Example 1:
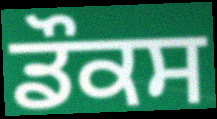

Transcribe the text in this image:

ਡੌਕਸ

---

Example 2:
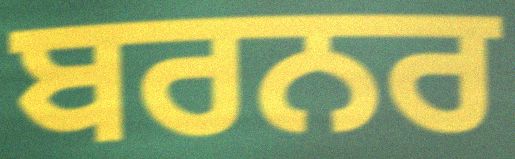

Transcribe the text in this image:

ਬਰਨਰ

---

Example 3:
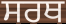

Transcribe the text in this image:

ਸਰਥ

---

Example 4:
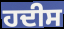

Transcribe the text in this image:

ਹਦੀਸ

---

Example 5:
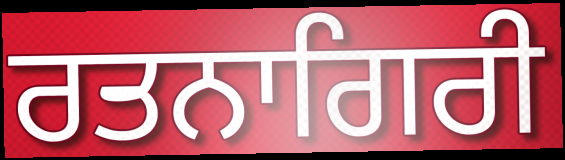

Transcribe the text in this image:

ਰਤਨਾਗਿਰੀ